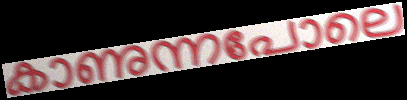
കാണുന്നപോലെ